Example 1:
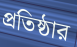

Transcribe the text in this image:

প্রতিষ্ঠার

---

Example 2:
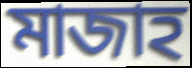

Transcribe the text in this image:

মাজাহ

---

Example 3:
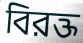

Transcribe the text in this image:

বিরক্ত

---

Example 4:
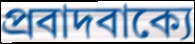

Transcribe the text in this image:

প্রবাদবাক্যে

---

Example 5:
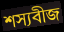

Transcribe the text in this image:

শস্যবীজ